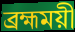
ব্রহ্মময়ী